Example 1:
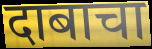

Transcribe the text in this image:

दाबाचा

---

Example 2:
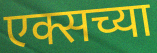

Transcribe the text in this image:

एक्सच्या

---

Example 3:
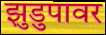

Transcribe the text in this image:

झुडुपावर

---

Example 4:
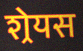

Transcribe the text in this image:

श्रेयस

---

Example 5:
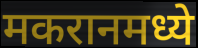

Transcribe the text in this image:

मकरानमध्ये